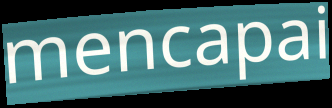
mencapai